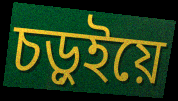
চড়ুইয়ে